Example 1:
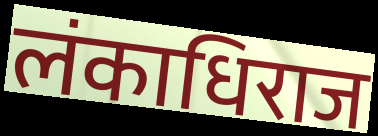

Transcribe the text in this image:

लंकाधिराज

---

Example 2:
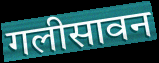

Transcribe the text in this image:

गलीसावन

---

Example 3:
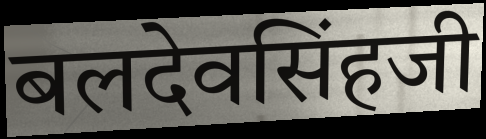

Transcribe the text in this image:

बलदेवसिंहजी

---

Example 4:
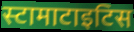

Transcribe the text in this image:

स्टामाटाइटिस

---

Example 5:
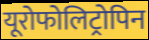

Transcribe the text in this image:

यूरोफोलिट्रोपिन